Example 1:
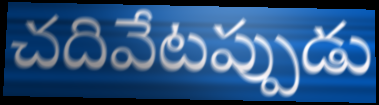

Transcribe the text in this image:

చదివేటప్పుడు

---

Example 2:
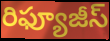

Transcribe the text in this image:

రిఫ్యూజీస్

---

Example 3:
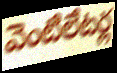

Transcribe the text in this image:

వెంటిలేటర్ల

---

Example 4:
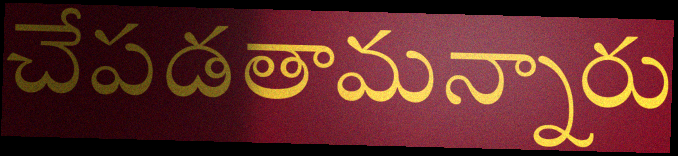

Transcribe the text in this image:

చేపడతామన్నారు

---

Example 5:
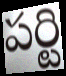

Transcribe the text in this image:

పర్టి